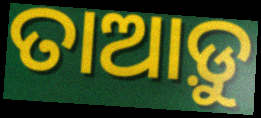
ତାଆଡ଼ୁ